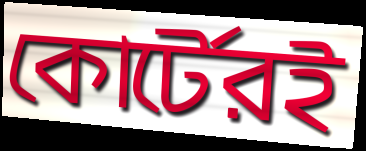
কোর্টেরই